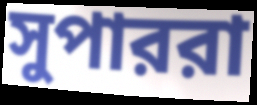
সুপাররা